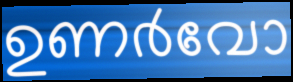
ഉണർവോ